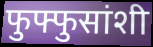
फुफ्फुसांशी